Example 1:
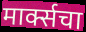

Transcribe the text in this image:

मार्क्सचा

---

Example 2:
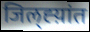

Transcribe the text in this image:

जिल्ह्य़ांत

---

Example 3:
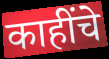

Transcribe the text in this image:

काहींचे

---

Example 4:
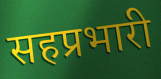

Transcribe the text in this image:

सहप्रभारी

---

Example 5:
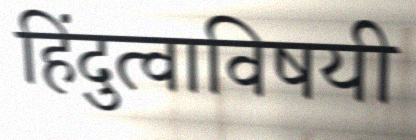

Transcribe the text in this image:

हिंदुत्वाविषयी